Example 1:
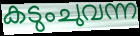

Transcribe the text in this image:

കടുംചുവന്ന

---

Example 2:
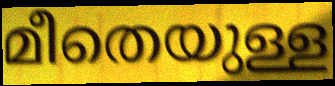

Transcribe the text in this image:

മീതെയുള്ള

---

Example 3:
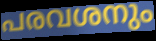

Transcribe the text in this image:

പരവശനും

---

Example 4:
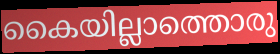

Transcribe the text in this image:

കൈയില്ലാത്തൊരു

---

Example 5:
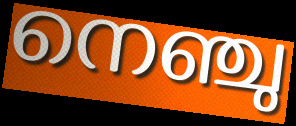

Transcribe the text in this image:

നെഞ്ചു